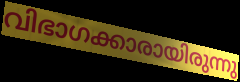
വിഭാഗക്കാരായിരുന്നു